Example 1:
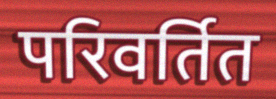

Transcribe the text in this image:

परिवर्तित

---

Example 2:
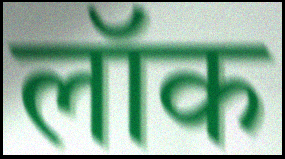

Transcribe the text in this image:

लॉक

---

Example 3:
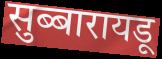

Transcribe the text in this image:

सुब्बारायडू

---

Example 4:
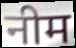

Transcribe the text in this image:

नीम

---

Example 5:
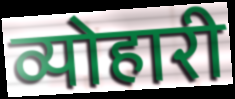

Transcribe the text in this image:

व्योहारी